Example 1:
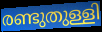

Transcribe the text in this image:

രണ്ടുതുള്ളി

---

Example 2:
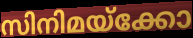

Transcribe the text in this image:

സിനിമയ്ക്കോ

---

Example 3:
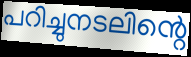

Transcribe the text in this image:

പറിച്ചുനടലിന്റെ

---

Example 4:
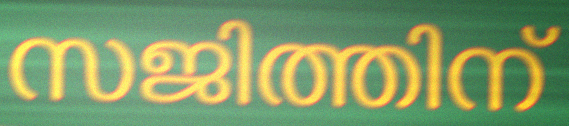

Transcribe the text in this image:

സജിത്തിന്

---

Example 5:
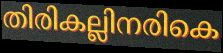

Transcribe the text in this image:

തിരികല്ലിനരികെ